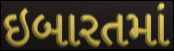
ઇબારતમાં